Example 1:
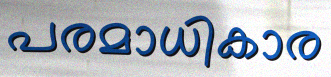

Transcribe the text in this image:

പരമാധികാര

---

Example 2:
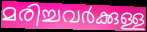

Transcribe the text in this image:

മരിച്ചവർക്കുള്ള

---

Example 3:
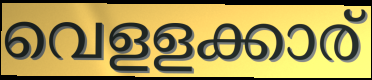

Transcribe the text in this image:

വെളളക്കാര്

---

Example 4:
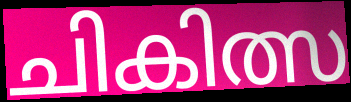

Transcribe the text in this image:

ചികിത്സ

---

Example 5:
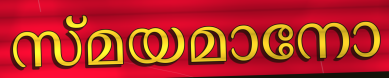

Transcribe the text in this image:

സ്മയമാനോ